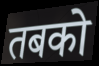
तबको